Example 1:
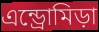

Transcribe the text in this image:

এন্ড্রোমিড়া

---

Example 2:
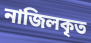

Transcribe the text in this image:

নাজিলকৃত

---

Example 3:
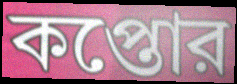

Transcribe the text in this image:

কপ্তোর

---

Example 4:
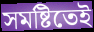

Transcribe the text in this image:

সমষ্টিতেই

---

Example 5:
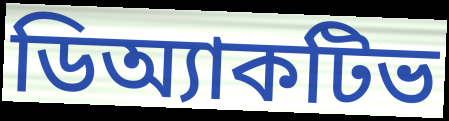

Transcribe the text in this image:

ডিঅ্যাকটিভ